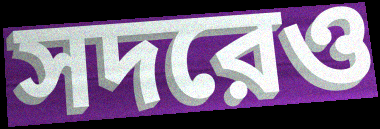
সদরেও